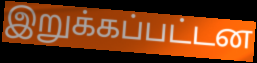
இறுக்கப்பட்டன